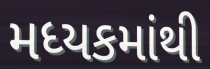
મધ્યકમાંથી